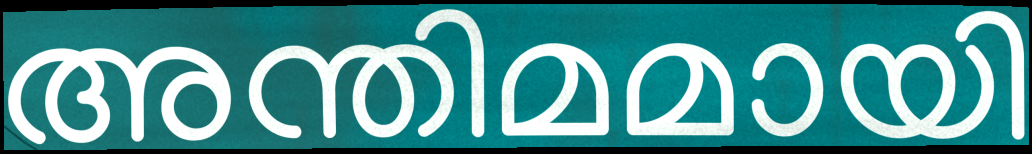
അന്തിമമായി